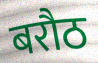
बरौठ